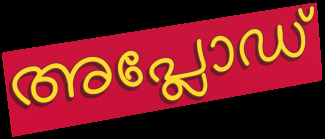
അപ്ലോഡ്